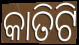
କାତିଟି